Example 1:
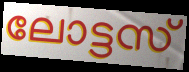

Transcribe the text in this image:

ലോട്ടസ്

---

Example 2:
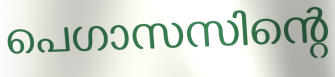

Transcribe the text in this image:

പെഗാസസിന്റെ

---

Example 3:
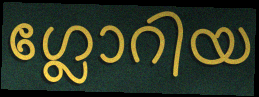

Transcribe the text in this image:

ഗ്ലോറിയ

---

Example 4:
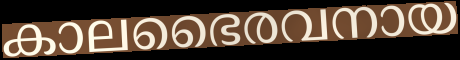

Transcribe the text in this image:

കാലഭൈരവനായ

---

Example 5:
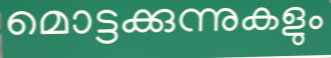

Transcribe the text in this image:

മൊട്ടക്കുന്നുകളും